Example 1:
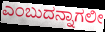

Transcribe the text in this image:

ಎಂಬುದನ್ನಾಗಲೀ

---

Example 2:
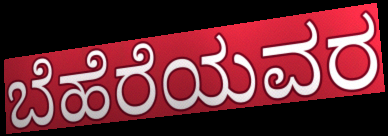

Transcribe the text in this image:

ಬೆಹೆರೆಯವರ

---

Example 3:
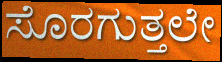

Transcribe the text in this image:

ಸೊರಗುತ್ತಲೇ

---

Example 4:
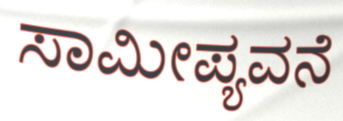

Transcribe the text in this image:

ಸಾಮೀಪ್ಯವನೆ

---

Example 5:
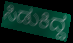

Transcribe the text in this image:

ಸಿಡುಕಿದ್ದ